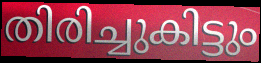
തിരിച്ചുകിട്ടും